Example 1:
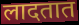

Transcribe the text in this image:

लादतात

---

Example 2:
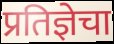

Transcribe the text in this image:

प्रतिज्ञेचा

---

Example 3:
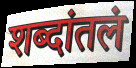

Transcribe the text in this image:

शब्दांतलं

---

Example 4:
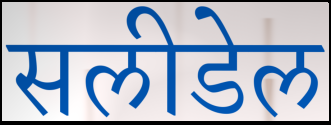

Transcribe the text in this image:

सलीडेल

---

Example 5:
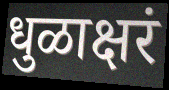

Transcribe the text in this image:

धुळाक्षरं